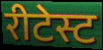
रीटेस्ट